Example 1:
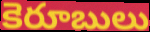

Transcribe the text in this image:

కెరూబులు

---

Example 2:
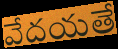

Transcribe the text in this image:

వేదయతే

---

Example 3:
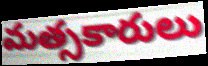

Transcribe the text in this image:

మత్సకారులు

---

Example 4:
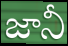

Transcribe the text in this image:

జానీ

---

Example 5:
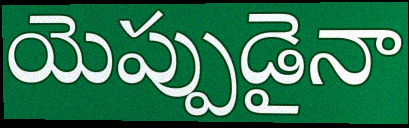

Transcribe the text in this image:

యెప్పుడైనా